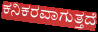
ಕನಿಕರವಾಗುತ್ತದೆ